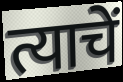
त्याचें